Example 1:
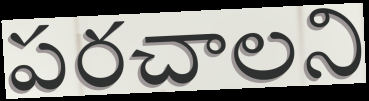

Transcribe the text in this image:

పరచాలని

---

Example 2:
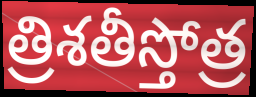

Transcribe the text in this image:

త్రిశతీస్తోత్ర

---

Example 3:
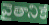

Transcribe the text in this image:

వైతానికే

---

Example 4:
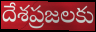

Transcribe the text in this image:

దేశప్రజలకు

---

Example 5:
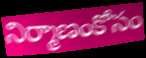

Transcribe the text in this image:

నిర్మాణంకోసం